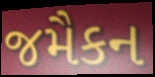
જમૈકન